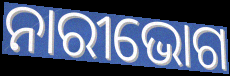
ନାରୀଭୋଗ